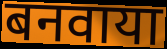
बनवाया